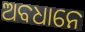
ଅବଧାନେ